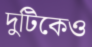
দুটিকেও